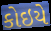
કોઇયે